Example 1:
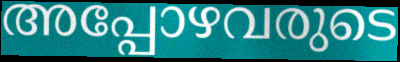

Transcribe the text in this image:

അപ്പോഴവരുടെ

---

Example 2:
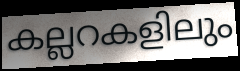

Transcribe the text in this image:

കല്ലറകളിലും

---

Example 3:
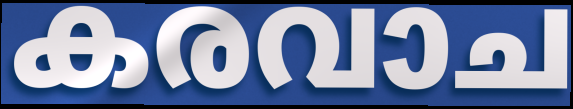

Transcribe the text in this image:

കരവാച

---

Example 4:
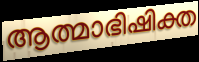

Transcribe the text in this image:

ആത്മാഭിഷിക്ത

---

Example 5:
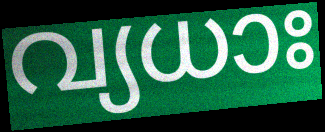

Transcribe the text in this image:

വ്യധാഃ